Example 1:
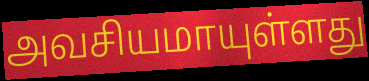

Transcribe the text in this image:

அவசியமாயுள்ளது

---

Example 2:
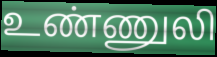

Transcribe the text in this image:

உண்ணுலி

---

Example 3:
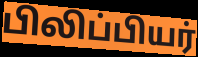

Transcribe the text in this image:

பிலிப்பியர்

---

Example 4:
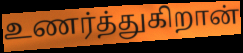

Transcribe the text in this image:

உணர்த்துகிறான்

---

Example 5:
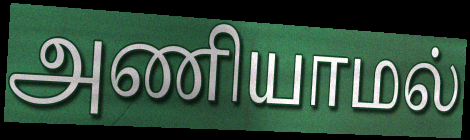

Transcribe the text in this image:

அணியாமல்